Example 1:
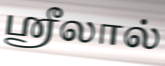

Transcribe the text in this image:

ஸ்ரீலால்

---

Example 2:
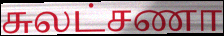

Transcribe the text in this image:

சுலட்சணா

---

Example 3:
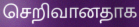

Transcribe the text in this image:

செறிவானதாக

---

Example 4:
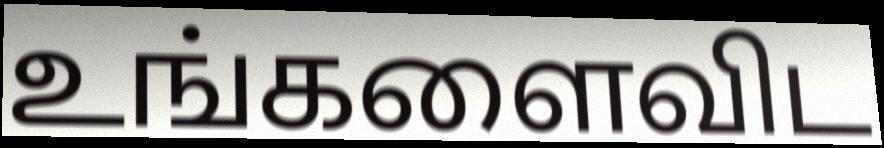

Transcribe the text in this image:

உங்களைவிட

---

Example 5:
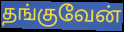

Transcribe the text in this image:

தங்குவேன்